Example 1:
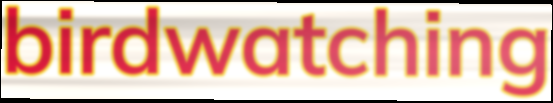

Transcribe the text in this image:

birdwatching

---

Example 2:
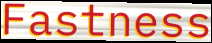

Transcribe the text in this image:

Fastness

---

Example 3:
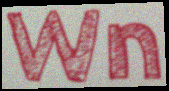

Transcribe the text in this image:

Wn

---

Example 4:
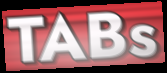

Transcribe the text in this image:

TABs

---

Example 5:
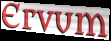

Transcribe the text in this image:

Ervum